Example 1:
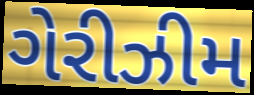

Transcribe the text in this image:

ગેરીઝીમ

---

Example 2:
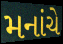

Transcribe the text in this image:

મનાંચે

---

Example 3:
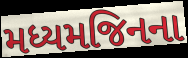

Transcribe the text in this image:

મધ્યમજિનના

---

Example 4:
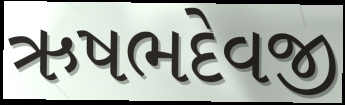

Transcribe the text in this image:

ઋષભદેવજી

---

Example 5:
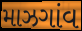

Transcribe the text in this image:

માઝગાંવ